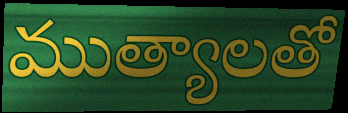
ముత్యాలతో